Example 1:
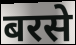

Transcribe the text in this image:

बरसे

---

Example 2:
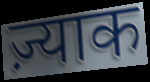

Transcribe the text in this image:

ज़्याक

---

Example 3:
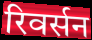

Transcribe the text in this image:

रिवर्सन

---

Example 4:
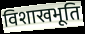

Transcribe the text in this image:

विशाखभूति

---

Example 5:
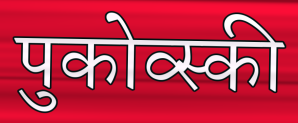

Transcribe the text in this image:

पुकोव्स्की